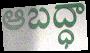
ఆబద్ధా